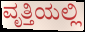
ವೃತ್ತಿಯಲ್ಲಿ